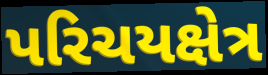
પરિચયક્ષેત્ર